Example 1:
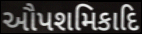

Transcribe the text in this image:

ઔપશમિકાદિ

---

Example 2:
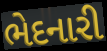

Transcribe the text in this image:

ભેદનારી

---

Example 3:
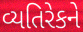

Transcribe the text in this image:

વ્યતિરેકને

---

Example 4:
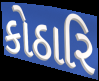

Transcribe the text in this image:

કોઠારિ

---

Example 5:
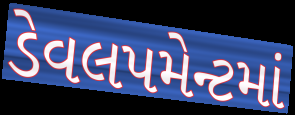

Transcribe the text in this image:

ડેવલપમેન્ટમાં